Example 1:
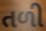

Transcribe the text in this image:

તળી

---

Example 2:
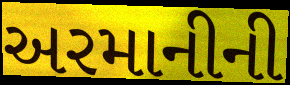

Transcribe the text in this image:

અરમાનીની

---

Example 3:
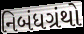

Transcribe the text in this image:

નિબંધગ્રંથો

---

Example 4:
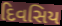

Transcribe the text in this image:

દિવસિય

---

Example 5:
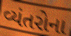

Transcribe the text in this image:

વ્યંતરોના